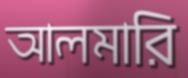
আলমারি